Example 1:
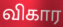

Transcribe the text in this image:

விகார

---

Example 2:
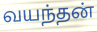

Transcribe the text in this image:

வயந்தன்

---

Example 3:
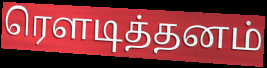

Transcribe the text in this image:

ரௌடித்தனம்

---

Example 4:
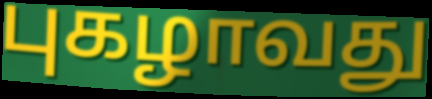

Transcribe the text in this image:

புகழாவது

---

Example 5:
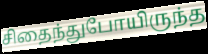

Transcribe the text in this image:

சிதைந்துபோயிருந்த